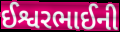
ઈશ્વરભાઈની